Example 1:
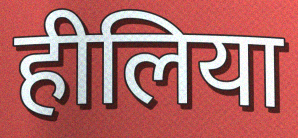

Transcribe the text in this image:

हीलिया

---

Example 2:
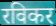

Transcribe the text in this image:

रविकर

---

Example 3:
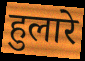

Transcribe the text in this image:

हुलारे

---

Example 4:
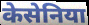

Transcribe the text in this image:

केसेनिया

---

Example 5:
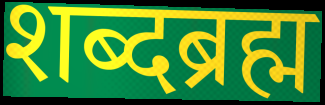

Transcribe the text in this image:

शब्दब्रह्म